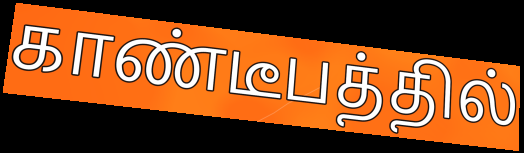
காண்டீபத்தில்